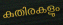
കുതിരകളും